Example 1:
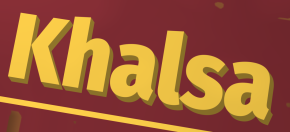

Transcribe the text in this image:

Khalsa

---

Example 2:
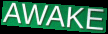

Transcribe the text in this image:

AWAKE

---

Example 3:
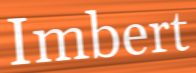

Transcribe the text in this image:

Imbert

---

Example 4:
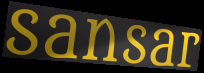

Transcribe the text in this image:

sansar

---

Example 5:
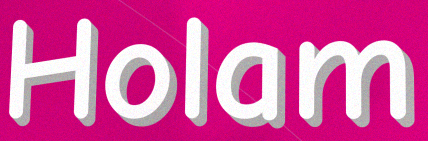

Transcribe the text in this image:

Holam